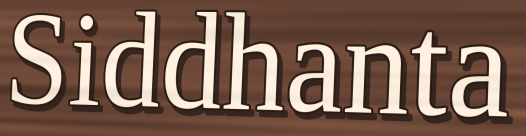
Siddhanta